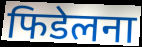
फिडेलना